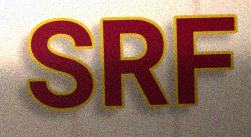
SRF